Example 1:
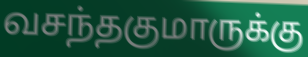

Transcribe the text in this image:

வசந்தகுமாருக்கு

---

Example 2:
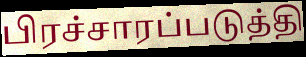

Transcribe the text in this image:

பிரச்சாரப்படுத்தி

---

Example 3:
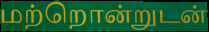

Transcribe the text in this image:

மற்றொன்றுடன்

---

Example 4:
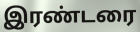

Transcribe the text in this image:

இரண்டரை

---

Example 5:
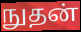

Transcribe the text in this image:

நுதன்